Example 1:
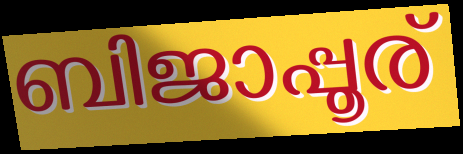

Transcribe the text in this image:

ബിജാപ്പൂര്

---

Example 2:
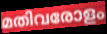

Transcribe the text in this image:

മതിവരോളം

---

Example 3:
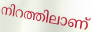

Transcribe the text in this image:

നിറത്തിലാണ്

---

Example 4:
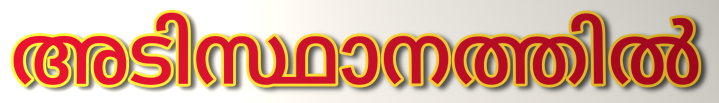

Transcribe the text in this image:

അടിസ്ഥാനത്തിൽ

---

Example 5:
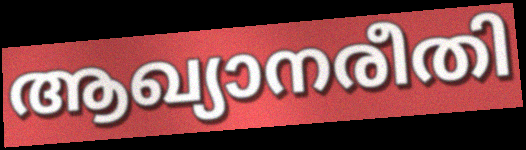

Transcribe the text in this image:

ആഖ്യാനരീതി